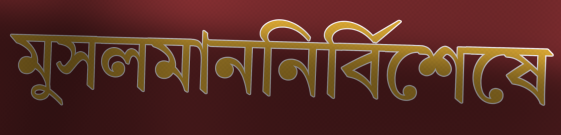
মুসলমাননির্বিশেষে